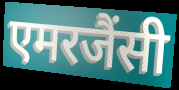
एमरजैंसी